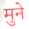
मुने